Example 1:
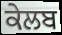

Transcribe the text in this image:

ਕੇਲਬ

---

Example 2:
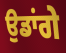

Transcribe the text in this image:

ਉਡਾਂਗੇ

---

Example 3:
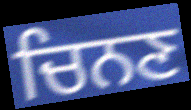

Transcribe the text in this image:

ਚਿਨਣ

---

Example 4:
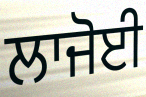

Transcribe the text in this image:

ਲਾਜੋਈ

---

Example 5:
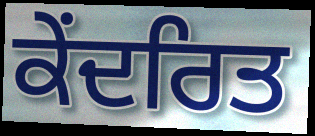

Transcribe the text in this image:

ਕੇਂਦਰਿਤ